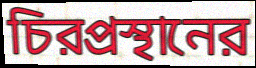
চিরপ্রস্থানের